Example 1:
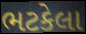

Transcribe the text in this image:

ભટકેલા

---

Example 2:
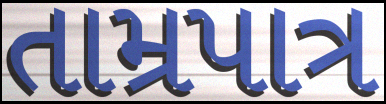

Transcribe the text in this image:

તામ્રપાત્ર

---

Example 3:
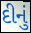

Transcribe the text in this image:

દીનું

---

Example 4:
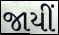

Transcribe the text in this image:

જાયીં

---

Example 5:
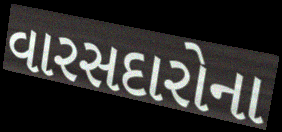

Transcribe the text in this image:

વારસદારોના